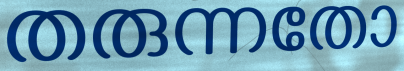
തരുന്നതോ